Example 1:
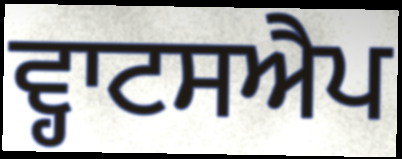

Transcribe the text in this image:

ਵ੍ਹਾਟਸਐਪ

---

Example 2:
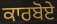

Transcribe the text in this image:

ਕਾਰਬੋਏ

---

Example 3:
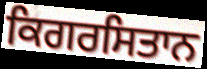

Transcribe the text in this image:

ਕਿਗਰਸਿਤਾਨ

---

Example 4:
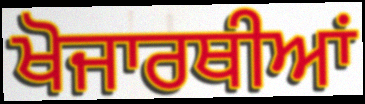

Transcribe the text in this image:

ਖੋਜਾਰਥੀਆਂ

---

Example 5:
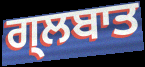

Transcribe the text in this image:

ਗ੍ਲਬਾਤ